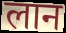
लान